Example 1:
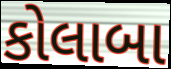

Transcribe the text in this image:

કોલાબા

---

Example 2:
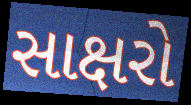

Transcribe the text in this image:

સાક્ષરો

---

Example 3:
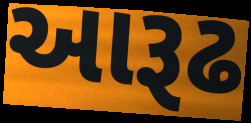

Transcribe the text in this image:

આરૂઢ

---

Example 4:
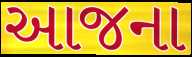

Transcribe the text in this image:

આજના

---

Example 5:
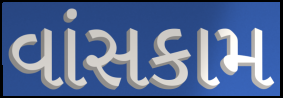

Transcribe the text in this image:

વાંસકામ